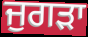
ਜੁਗੜਾ